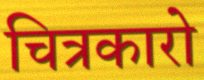
चित्रकारो